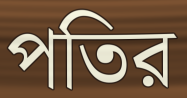
পতির